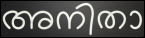
അനിതാ